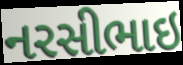
નરસીભાઇ